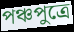
পঞ্চপুত্রে